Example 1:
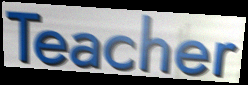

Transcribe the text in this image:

Teacher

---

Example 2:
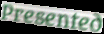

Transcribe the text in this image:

Presented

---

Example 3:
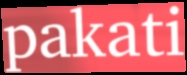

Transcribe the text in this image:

pakati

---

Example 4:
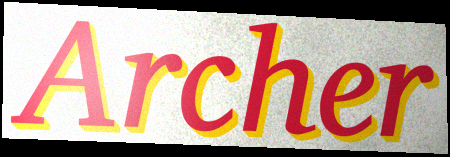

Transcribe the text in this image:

Archer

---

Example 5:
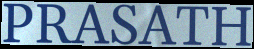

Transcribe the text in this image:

PRASATH